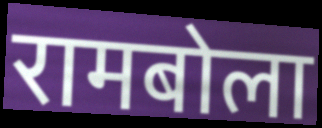
रामबोला